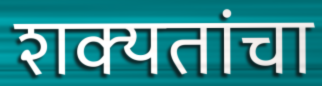
शक्यतांचा